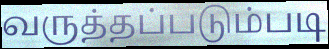
வருத்தப்படும்படி